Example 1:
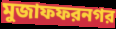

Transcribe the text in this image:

মুজাফফরনগর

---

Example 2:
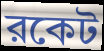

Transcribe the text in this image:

রকেট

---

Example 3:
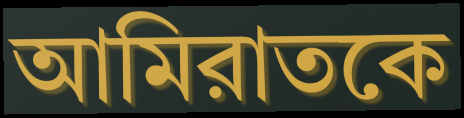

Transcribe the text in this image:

আমিরাতকে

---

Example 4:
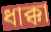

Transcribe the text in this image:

ধাক্কা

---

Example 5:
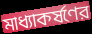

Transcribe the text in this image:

মাধ্যাকর্ষণের